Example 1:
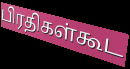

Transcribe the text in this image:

பிரதிகள்கூட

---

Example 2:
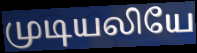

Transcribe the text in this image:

முடியலியே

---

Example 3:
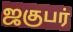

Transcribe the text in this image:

ஜகுபர்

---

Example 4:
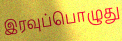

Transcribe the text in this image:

இரவுப்பொழுது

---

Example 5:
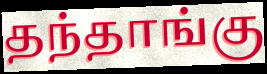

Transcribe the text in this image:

தந்தாங்கு